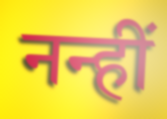
नन्‍हीं